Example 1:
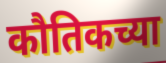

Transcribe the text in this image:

कौतिकच्या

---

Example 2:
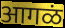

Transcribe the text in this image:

आगळं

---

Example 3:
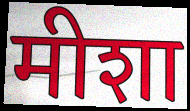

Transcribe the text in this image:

मीशा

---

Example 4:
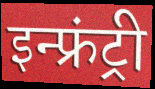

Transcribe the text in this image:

इन्फ्रंट्री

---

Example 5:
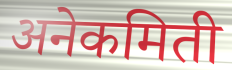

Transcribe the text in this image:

अनेकमिती